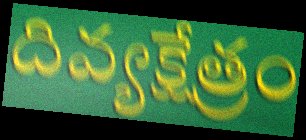
దివ్యక్షేత్రం